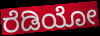
ರೆಡಿಯೋ